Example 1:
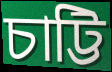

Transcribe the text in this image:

চাট্টি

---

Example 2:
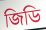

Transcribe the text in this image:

জিডি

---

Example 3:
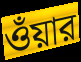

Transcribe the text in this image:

ওঁয়ার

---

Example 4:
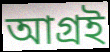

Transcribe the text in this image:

আগ্রই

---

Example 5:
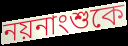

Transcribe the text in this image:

নয়নাংশুকে